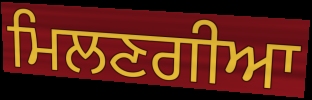
ਮਿਲਣਗੀਆ